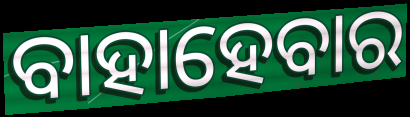
ବାହାହେବାର